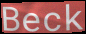
Beck